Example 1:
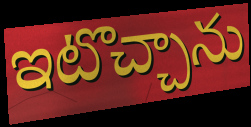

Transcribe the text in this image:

ఇటొచ్చాను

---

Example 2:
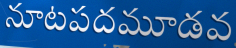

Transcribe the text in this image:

నూటపదమూడవ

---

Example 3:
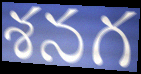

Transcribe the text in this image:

శనగ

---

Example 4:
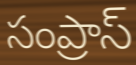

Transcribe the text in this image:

సంప్రాస్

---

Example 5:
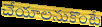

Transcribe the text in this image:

చేయాలనుకొంటే